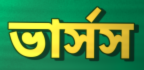
ভার্সস